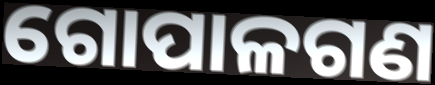
ଗୋପାଳଗଣ